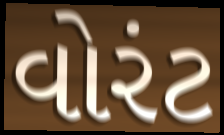
વોરંટ